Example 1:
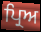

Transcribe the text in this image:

ਪ੍ਰਿਅ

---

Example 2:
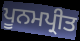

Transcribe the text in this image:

ਪੂਨਮਪ੍ਰੀਤ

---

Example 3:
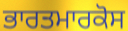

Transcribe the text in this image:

ਭਾਰਤਮਾਰਕੋਸ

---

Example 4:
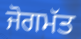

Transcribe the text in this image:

ਜੋਗਮੱਤ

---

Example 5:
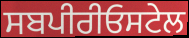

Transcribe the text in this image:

ਸਬਪੀਰੀਓਸਟੇਲ